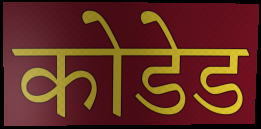
कोडेड